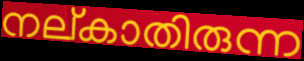
നല്കാതിരുന്ന